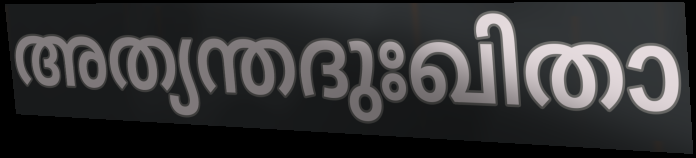
അത്യന്തദുഃഖിതാ